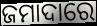
ଜମାଦାରେ